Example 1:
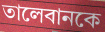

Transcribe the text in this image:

তালেবানকে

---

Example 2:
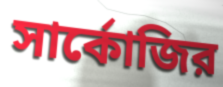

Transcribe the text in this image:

সার্কোজির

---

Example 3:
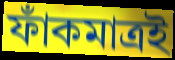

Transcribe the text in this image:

ফাঁকমাত্রই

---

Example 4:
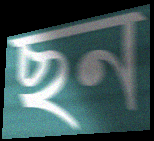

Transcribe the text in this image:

ছন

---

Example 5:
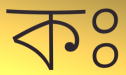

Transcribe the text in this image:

কঃ